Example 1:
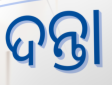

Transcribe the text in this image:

ଦନ୍ତା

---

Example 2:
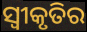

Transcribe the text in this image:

ସ୍ୱୀକୃତିର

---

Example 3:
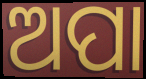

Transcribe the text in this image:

ଅପା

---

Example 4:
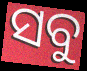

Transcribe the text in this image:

ସବୁ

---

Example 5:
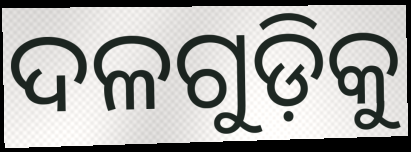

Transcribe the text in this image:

ଦଳଗୁଡ଼ିକୁ